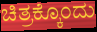
ಚಿತ್ರಕ್ಕೊಂದು